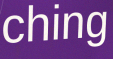
ching